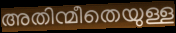
അതിന്മീതെയുള്ള